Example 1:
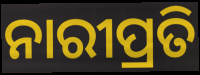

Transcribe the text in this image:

ନାରୀପ୍ରତି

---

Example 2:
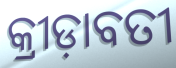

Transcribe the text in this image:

କ୍ରୀଡ଼ାବତୀ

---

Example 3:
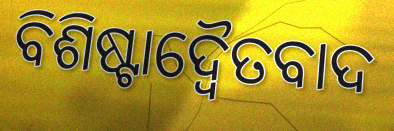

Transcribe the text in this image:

ବିଶିଷ୍ଟାଦ୍ୱୈତବାଦ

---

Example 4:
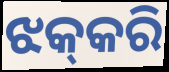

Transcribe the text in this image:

ଝକ୍‌କରି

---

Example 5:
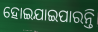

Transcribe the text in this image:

ହୋଇଯାଇପାରନ୍ତି